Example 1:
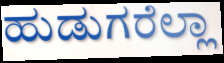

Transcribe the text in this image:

ಹುಡುಗರೆಲ್ಲಾ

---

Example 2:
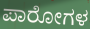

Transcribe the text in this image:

ಪಾರೋಗಳ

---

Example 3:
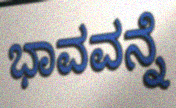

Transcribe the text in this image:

ಭಾವವನ್ನೆ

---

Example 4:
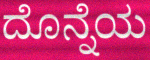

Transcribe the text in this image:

ದೊನ್ನೆಯ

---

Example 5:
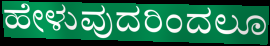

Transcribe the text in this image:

ಹೇಳುವುದರಿಂದಲೂ